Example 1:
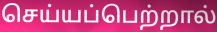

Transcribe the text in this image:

செய்யப்பெற்றால்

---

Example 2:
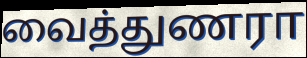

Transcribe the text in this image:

வைத்துணரா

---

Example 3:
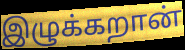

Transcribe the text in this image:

இழுக்கறான்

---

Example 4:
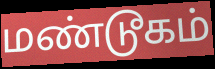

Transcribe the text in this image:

மண்டூகம்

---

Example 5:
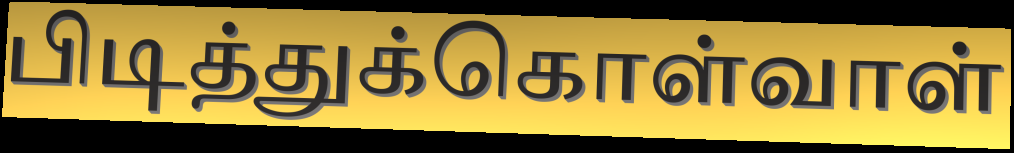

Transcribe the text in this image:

பிடித்துக்கொள்வாள்